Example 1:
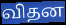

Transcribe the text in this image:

விதன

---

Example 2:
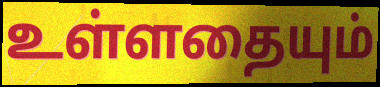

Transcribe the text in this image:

உள்ளதையும்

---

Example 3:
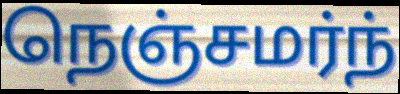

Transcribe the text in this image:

நெஞ்சமர்ந்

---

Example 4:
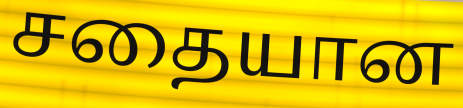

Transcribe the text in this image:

சதையான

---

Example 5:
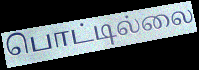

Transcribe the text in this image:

பொட்டில்லை